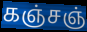
கஞ்சஞ்